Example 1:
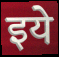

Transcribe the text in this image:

इये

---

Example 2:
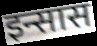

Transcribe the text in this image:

इन्सास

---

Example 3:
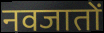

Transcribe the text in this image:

नवजातों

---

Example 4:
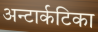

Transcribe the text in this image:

अन्टार्कटिका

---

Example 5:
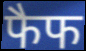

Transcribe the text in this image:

फैफ